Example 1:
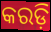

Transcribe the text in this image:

କରଡ଼ି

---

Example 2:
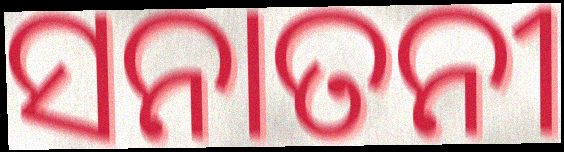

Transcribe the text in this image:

ସନାତନୀ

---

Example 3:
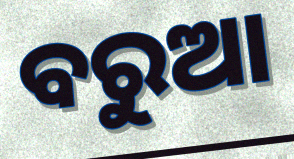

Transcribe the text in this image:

ବରୁଆ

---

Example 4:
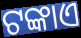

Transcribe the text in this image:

ଟଙ୍କାଏ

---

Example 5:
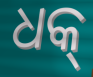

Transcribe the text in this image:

ଧକ୍